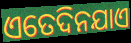
ଏତେଦିନଯାଏ